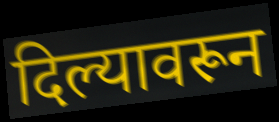
दिल्यावरून